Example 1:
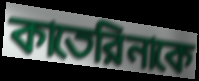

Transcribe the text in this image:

কাতেরিনাকে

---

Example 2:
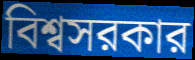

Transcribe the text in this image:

বিশ্বসরকার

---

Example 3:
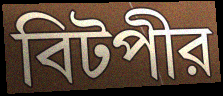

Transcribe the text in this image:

বিটপীর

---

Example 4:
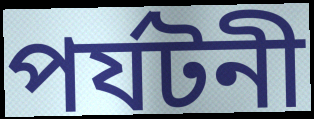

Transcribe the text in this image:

পর্যটনী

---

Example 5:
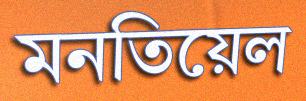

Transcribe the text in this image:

মনতিয়েল